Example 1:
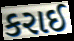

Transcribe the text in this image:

કરાઈ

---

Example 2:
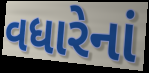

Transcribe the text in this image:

વધારેનાં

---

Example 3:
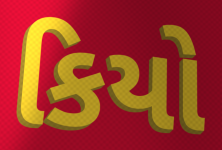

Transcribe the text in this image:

કિયો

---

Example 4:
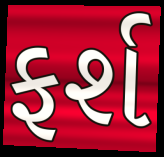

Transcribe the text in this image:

ફર્શ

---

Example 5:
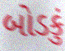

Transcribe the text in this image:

બોડકું